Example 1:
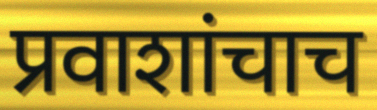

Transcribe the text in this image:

प्रवाशांचाच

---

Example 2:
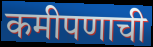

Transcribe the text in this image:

कमीपणाची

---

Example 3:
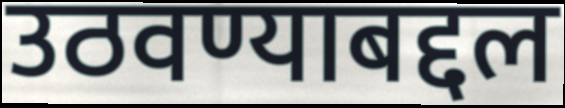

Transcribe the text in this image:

उठवण्याबद्दल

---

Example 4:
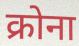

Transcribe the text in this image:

क्रोना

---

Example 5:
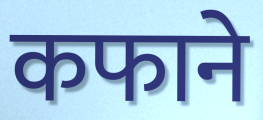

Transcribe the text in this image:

कफाने